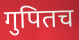
गुपितच